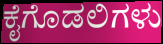
ಕೈಗೊಡಲಿಗಳು